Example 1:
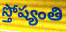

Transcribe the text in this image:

స్తోష్యంతి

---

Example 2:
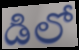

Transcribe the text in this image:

డిలో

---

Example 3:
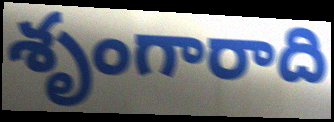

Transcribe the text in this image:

శృంగారాది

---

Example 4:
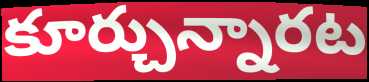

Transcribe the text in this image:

కూర్చున్నారట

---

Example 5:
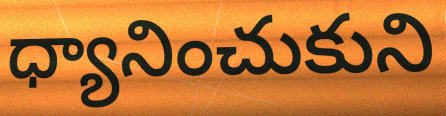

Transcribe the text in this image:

ధ్యానించుకుని